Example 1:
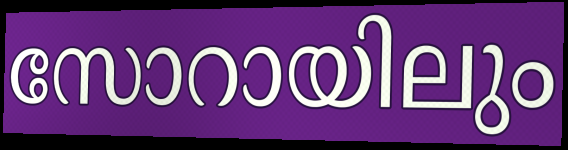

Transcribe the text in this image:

സോറായിലും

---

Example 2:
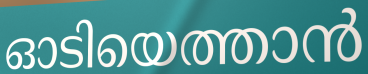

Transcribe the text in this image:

ഓടിയെത്താൻ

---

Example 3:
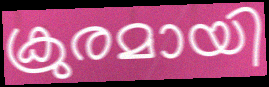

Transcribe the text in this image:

ക്രുരമായി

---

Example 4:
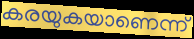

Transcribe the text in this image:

കരയുകയാണെന്ന്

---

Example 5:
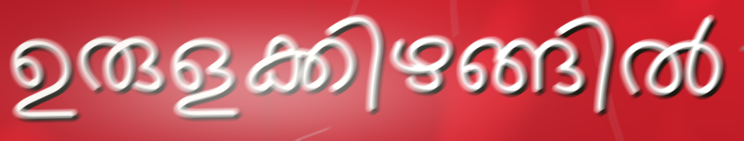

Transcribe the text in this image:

ഉരുളക്കിഴങ്ങിൽ